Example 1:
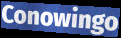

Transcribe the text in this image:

Conowingo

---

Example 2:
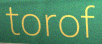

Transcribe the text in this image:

torof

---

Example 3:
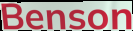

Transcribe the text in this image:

Benson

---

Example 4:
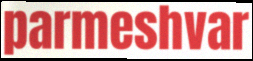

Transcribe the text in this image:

parmeshvar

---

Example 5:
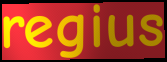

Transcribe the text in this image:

regius